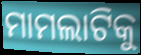
ମାମଲାଟିକୁ